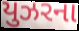
યુઝરના